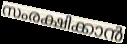
സംരക്ഷിക്കാൻ